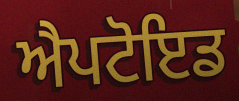
ਐਪਟੋਇਡ